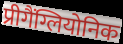
प्रीगैंग्लियोनिक